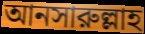
আনসারুল্লাহ